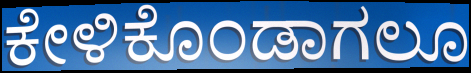
ಕೇಳಿಕೊಂಡಾಗಲೂ